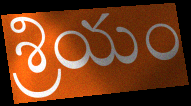
శ్రియం